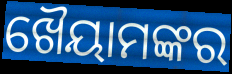
ଖୈୟାମଙ୍କର